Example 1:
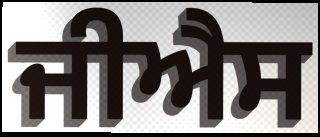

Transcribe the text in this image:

ਜੀਐਸ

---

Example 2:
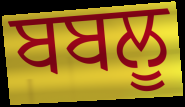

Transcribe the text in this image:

ਬਬਲੂ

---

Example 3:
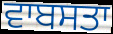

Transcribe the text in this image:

ਵਾਬਸਤਾ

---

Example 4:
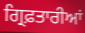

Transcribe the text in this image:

ਗ੍ਰਿਫ਼ਤਾਰੀਆਂ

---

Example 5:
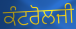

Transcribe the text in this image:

ਕੰਟਰੋਲਜੀ